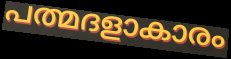
പത്മദളാകാരം